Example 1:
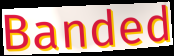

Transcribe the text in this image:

Banded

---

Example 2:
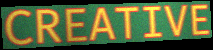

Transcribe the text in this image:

CREATIVE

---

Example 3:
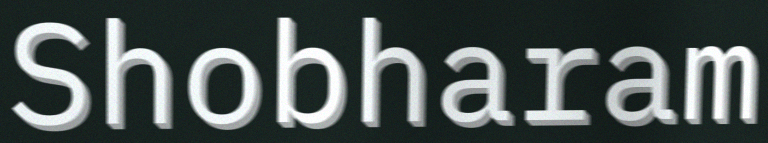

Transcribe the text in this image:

Shobharam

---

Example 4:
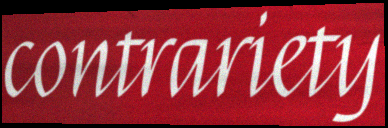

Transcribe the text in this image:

contrariety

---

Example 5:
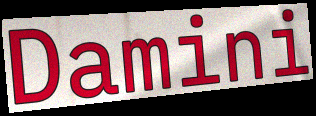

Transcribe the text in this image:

Damini